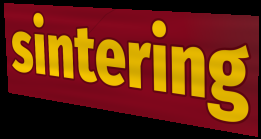
sintering